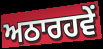
ਅਠਾਰਹਵੇਂ